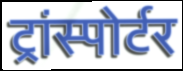
ट्रांस्पोर्टर